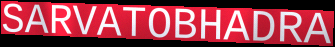
SARVATOBHADRA